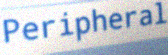
Peripheral